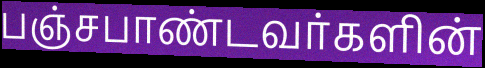
பஞ்சபாண்டவர்களின்